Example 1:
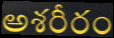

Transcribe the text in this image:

అశరీరం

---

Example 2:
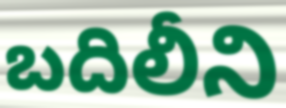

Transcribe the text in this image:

బదిలీని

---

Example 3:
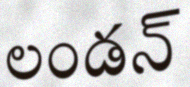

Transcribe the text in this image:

లండన్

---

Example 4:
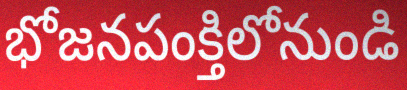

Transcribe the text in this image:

భోజనపంక్తిలోనుండి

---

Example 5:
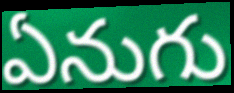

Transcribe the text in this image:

ఏనుగు